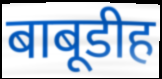
बाबूडीह